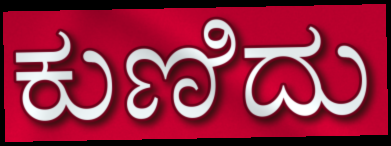
ಕುಣಿದು